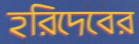
হরিদেবের